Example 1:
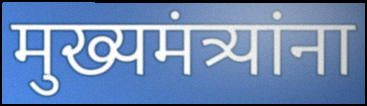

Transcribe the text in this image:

मुख्यमंत्र्यांना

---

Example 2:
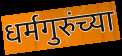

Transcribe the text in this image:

धर्मगुरुंच्या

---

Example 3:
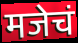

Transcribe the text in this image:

मजेचं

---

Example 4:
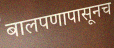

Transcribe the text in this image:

बालपणापासूनच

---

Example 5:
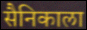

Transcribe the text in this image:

सैनिकाला